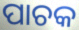
ପାଚକ